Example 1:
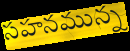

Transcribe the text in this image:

సహనమున్న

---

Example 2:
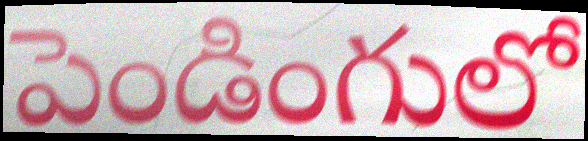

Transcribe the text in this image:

పెండింగులో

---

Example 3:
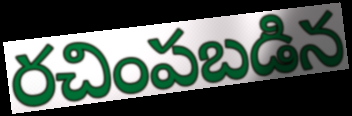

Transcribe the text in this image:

రచింపబడిన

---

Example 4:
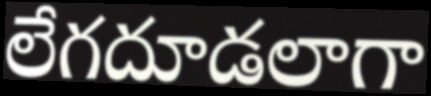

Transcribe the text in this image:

లేగదూడలాగా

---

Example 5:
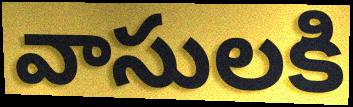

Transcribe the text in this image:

వాసులకి